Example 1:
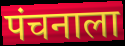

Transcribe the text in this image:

पंचनाला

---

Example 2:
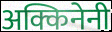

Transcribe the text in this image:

अक्किनेनी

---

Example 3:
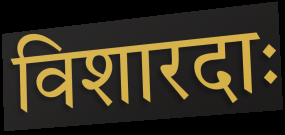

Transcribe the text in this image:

विशारदाः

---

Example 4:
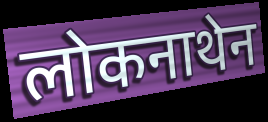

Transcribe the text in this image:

लोकनाथेन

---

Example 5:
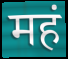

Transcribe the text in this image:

महं